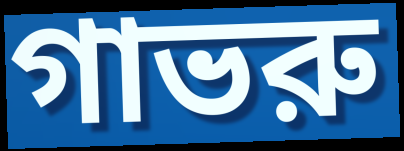
গাভরু